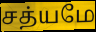
சத்யமே